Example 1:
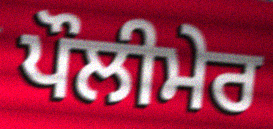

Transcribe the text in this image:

ਪੌਲੀਮੇਰ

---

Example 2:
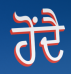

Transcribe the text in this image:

ਹੋਂਦੈ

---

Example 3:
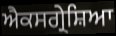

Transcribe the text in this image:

ਐਕਸਗ੍ਰੇਸ਼ਿਆ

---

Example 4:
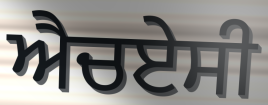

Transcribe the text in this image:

ਐਚਏਸੀ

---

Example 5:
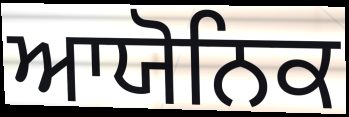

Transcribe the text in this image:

ਆਯੋਨਿਕ